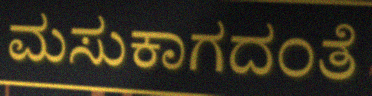
ಮಸುಕಾಗದಂತೆ